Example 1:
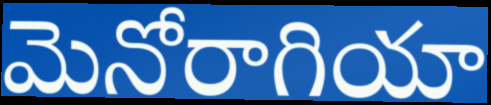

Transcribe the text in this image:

మెనోరాగియా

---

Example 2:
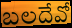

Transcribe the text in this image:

బలదేవో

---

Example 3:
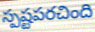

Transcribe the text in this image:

స్పష్టపరచింది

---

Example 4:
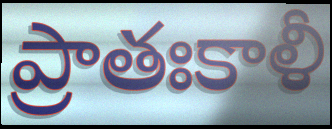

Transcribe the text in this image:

ప్రాతఃకాళీ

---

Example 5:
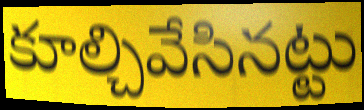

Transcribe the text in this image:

కూల్చివేసినట్టు